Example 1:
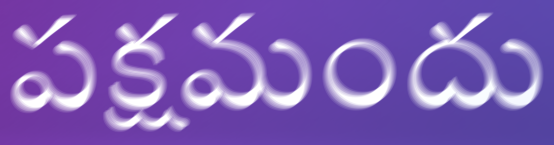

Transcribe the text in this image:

పక్షమందు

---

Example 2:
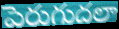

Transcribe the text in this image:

పెరుగుదలా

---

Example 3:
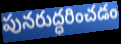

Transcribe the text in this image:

పునరుద్ధరించడం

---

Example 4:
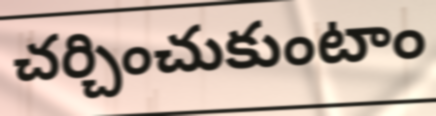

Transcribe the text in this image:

చర్చించుకుంటాం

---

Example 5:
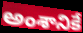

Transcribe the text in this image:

అంశానికే